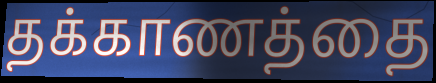
தக்காணத்தை